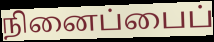
நினைப்பைப்